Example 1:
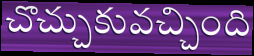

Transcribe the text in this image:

చొచ్చుకువచ్చింది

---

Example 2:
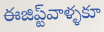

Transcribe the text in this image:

ఈజిప్ట్‌వాళ్ళకూ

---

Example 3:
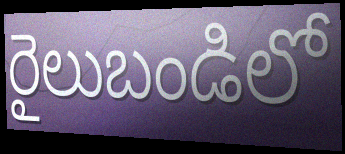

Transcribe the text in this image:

రైలుబండిలో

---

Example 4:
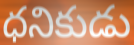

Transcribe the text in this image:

ధనికుడు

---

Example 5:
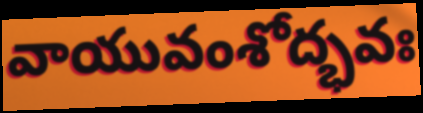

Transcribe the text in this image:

వాయువంశోద్భవః